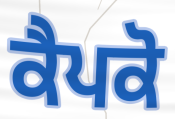
ਕੈਪਕੋ